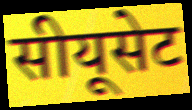
सीयूसेट